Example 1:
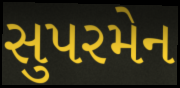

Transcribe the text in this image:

સુપરમેન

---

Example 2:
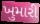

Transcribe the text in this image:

ખુમારી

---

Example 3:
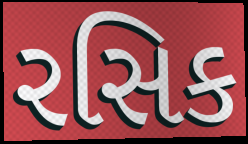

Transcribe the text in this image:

રસિક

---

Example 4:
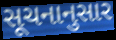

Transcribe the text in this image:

સૂચનાનુસાર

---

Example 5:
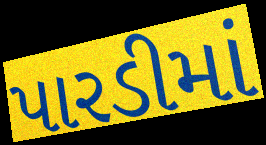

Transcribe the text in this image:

પારડીમાં